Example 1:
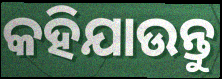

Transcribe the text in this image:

କହିଯାଉନ୍ତୁ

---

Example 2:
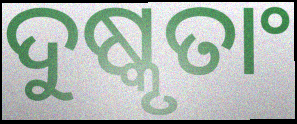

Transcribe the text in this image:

ଦୁଷ୍କୃତାଂ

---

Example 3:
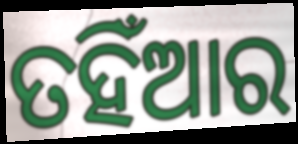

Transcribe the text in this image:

ତହିଁଆର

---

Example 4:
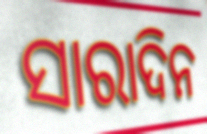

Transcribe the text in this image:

ସାରାଦିନ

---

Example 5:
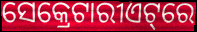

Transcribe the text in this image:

ସେକ୍ରେଟାରୀଏଟ୍‌ରେ